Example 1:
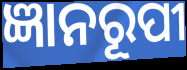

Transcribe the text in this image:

ଜ୍ଞାନରୂପୀ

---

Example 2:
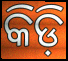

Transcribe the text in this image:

କିଡ଼ି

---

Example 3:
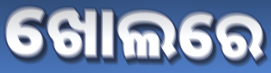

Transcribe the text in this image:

ଖୋଲରେ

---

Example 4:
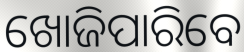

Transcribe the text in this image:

ଖୋଜିପାରିବେ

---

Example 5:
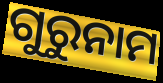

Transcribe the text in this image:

ଗୁରୁନାମ